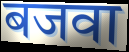
बजवा